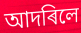
আদৰিলে